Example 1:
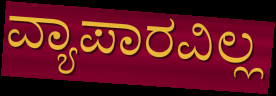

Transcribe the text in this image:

ವ್ಯಾಪಾರವಿಲ್ಲ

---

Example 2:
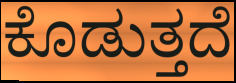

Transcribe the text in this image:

ಕೊಡುತ್ತದೆ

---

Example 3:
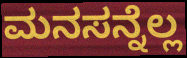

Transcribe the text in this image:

ಮನಸನ್ನೆಲ್ಲ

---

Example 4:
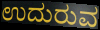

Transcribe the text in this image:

ಉದುರುವ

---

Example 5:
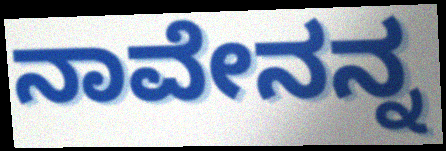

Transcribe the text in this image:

ನಾವೇನನ್ನ